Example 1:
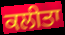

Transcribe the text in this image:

ਕਲੀਤਾ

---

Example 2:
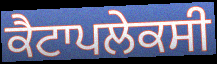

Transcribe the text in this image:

ਕੈਟਾਪਲੇਕਸੀ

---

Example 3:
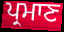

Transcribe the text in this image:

ਪ੍ਰਮਾਣ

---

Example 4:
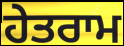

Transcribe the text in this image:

ਹੇਤਰਾਮ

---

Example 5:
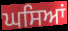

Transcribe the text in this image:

ਘਸਿਆਂ